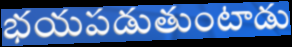
భయపడుతుంటాడు